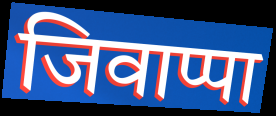
जिवाप्पा